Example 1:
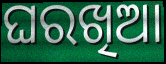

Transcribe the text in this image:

ଘରଖିଆ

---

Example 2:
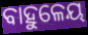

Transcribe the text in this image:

ବାହୁଳେୟ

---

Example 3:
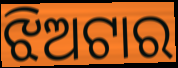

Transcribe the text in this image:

ଝିଅଟାର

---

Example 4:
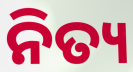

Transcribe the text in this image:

ନିତ୍ୟ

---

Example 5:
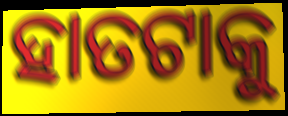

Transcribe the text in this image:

ହାତଟାକୁ